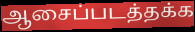
ஆசைப்படத்தக்க